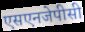
एसएनजेपीसी